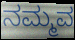
ನಮ್ಮವ